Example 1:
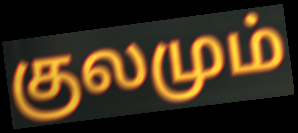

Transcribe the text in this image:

குலமும்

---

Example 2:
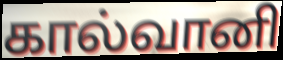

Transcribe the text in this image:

கால்வானி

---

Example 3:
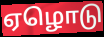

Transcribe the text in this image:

ஏழொடு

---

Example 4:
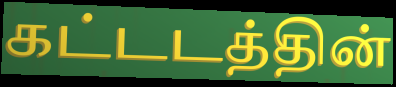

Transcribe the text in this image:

கட்டடத்தின்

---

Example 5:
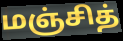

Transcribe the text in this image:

மஞ்சித்